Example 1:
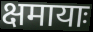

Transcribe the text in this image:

क्षमायाः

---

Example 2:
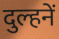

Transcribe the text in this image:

दुल्हनें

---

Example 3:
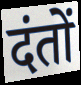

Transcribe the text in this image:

दंतों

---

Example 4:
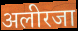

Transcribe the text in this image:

अलीरजा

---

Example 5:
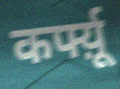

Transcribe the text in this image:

कर्फ्य़ू